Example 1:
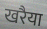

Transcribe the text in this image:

खरैया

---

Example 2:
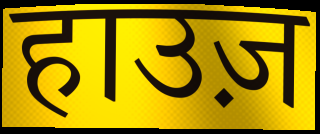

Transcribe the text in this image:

हाउज़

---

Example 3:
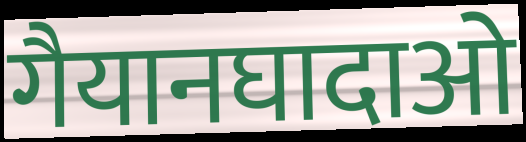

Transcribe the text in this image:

गैयानघादाओ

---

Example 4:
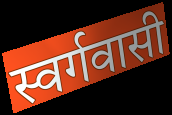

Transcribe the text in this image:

स्‍वर्गवासी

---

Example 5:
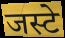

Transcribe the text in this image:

जस्टे